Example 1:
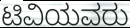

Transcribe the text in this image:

ಟಿವಿಯವರು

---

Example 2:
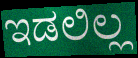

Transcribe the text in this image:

ಇಡಲಿಲ್ಲ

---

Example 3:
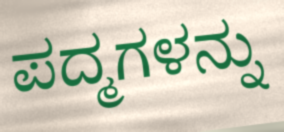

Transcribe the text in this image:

ಪದ್ಮಗಳನ್ನು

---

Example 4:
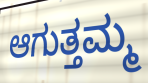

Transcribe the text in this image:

ಆಗುತ್ತಮ್ಮ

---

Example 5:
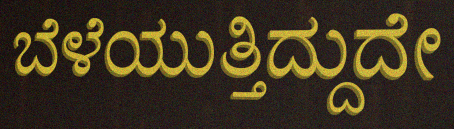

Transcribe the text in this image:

ಬೆಳೆಯುತ್ತಿದ್ದುದೇ